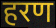
हरण